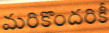
మరికొందరికీ